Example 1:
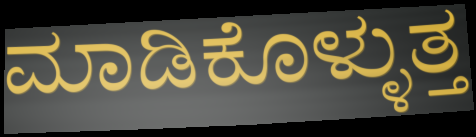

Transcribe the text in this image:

ಮಾಡಿಕೊಳ್ಳುತ್ತ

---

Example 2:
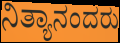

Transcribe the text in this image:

ನಿತ್ಯಾನಂದರು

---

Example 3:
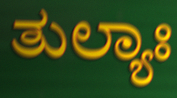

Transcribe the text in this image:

ತುಲ್ಯಾಃ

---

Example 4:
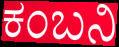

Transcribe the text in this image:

ಕಂಬನಿ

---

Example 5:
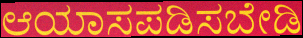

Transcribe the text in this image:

ಆಯಾಸಪಡಿಸಬೇಡಿ